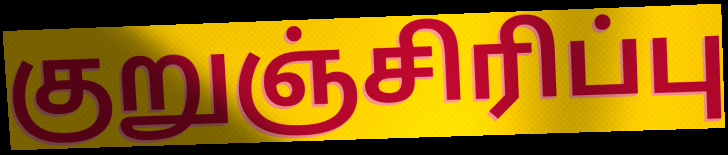
குறுஞ்சிரிப்பு